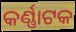
କର୍ଣ୍ଣାଟକ